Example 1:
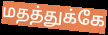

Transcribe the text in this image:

மதத்துக்கே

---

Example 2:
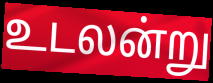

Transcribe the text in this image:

உடலன்று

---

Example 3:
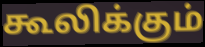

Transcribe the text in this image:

கூலிக்கும்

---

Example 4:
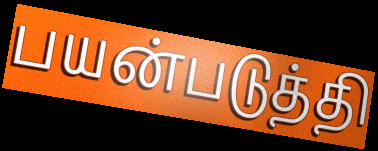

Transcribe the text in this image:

பயன்படுத்தி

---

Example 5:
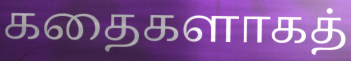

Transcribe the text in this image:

கதைகளாகத்